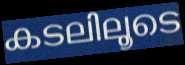
കടലിലൂടെ